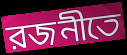
রজনীতে